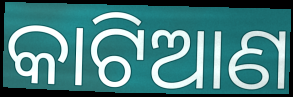
କାଟିଆଣ